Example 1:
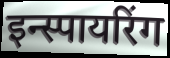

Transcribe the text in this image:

इन्स्पायरिंग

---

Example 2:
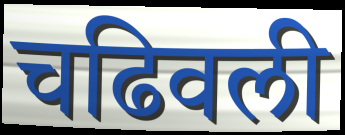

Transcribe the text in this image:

चढिवली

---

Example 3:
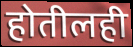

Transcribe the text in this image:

होतीलही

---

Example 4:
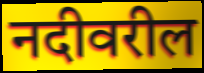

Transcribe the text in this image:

नदीवरील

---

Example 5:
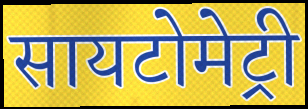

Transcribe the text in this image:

सायटोमेट्री